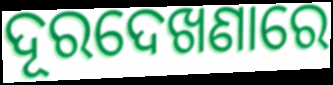
ଦୂରଦେଖଣାରେ